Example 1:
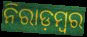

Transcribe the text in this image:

ନିରାଡ଼ମ୍ବର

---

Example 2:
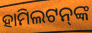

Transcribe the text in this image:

ହାମିଲଟନ୍‍ଙ୍କ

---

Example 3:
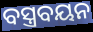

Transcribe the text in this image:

ବସ୍ତ୍ରବୟନ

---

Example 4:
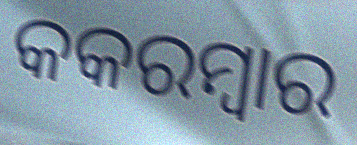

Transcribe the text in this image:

କକରମ୍ବାର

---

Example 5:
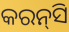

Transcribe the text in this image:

କରନ୍‌ସି